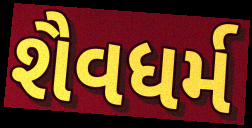
શૈવધર્મ